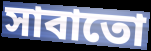
সাবাতো